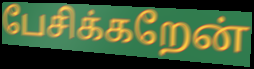
பேசிக்கறேன்